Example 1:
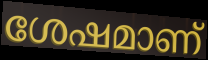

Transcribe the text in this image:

ശേഷമാണ്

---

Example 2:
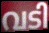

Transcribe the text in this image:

വടി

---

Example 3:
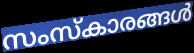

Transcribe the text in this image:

സംസ്കാരങ്ങൾ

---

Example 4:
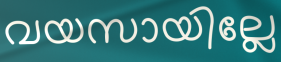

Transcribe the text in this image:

വയസായില്ലേ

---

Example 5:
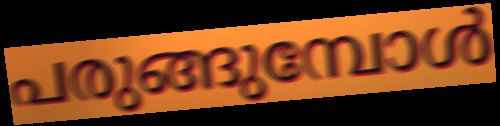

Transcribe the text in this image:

പരുങ്ങുമ്പോൾ